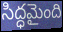
సిద్ధమైంది